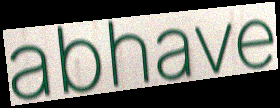
abhave